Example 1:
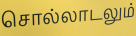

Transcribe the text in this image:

சொல்லாடலும்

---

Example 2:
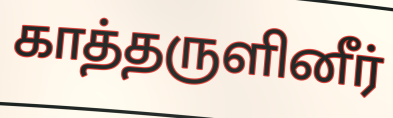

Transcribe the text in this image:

காத்தருளினீர்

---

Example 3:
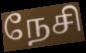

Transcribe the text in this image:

நேசி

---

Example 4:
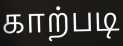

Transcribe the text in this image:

காற்படி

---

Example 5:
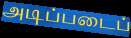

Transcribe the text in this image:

அடிப்படைப்